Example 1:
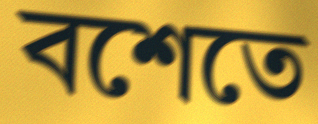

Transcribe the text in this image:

বশেতে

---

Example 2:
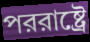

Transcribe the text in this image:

পররাষ্ট্রে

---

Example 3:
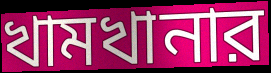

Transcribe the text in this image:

খামখানার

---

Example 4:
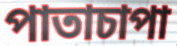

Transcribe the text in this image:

পাতাচাপা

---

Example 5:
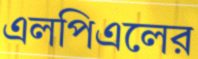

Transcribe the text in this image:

এলপিএলের